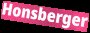
Honsberger